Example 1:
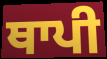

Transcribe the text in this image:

ਥਾਪੀ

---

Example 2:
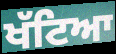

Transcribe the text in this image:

ਖੱਟਿਆ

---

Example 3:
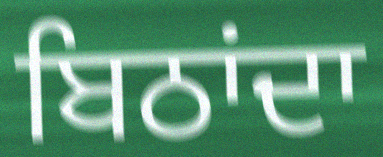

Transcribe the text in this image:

ਬਿਠਾਂਦਾ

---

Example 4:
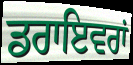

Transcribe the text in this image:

ਡਰਾਇਵਰਾਂ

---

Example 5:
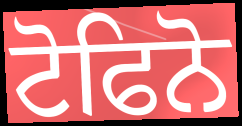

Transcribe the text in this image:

ਟੋਫਿਨੋ